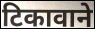
टिकावाने